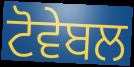
ਟੋਵੇਬਲ